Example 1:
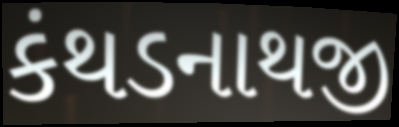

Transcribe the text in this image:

કંથડનાથજી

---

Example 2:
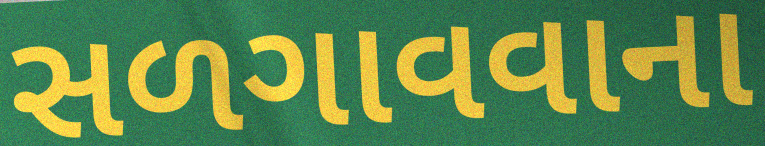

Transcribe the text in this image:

સળગાવવાના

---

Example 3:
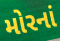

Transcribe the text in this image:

મોરનાં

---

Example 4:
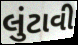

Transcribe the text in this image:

લુંટાવી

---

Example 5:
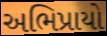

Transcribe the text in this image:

અભિપ્રાયો